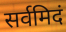
सर्वमिदं